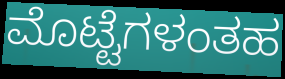
ಮೊಟ್ಟೆಗಳಂತಹ